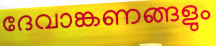
ദേവാങ്കണങ്ങളും